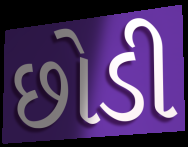
છોડી